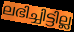
ലഭിച്ചിട്ടില്ല